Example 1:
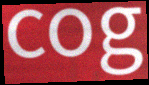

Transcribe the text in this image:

cog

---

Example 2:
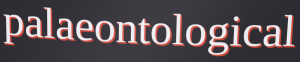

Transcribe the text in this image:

palaeontological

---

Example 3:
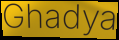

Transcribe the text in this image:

Ghadya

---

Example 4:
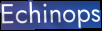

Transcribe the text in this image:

Echinops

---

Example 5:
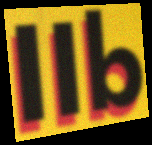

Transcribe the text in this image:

IIb